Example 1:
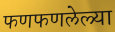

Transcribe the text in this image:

फणफणलेल्या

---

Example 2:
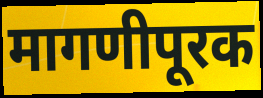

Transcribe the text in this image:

मागणीपूरक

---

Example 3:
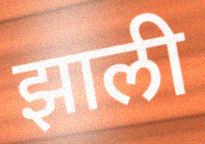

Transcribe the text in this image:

झाली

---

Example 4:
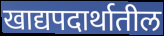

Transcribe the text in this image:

खाद्यपदार्थातील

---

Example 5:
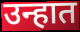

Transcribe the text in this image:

उन्हात